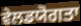
ਵੇਲਡਯੋਗਤਾ